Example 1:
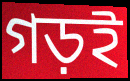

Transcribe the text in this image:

গড়ই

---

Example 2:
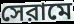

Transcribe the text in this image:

সেরামে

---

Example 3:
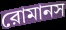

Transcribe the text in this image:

রোমানস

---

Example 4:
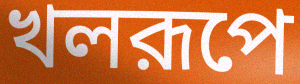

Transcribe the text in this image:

খলরূপে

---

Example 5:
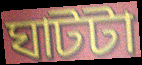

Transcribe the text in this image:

ঘাটটা